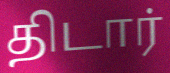
திடார்